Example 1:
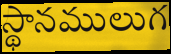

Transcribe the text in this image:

స్థానములుగ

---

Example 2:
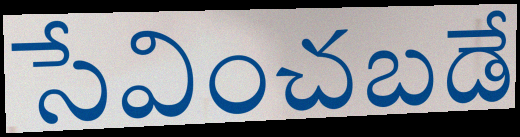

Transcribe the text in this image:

సేవించబడే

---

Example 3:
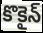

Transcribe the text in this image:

కొకైన్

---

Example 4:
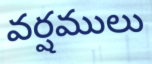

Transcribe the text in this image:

వర్షములు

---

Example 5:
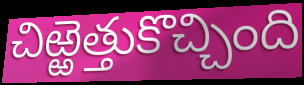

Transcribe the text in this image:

చిఱ్ఱెత్తుకొచ్చింది